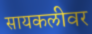
सायकलीवर